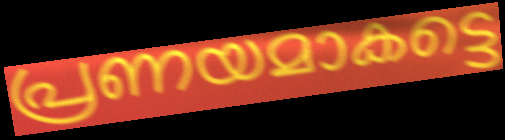
പ്രണയമാകട്ടെ